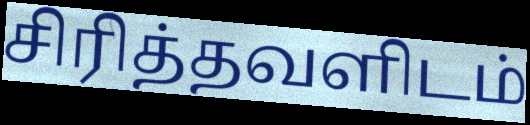
சிரித்தவளிடம்